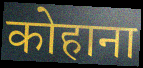
कोहाना